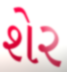
શેર